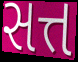
સત્ત